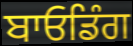
ਬਾਓਡਿੰਗ